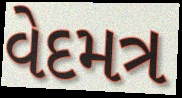
વેદમત્ર